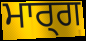
ਮਾਰ੍ਗ